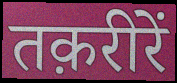
तक़रीरें